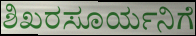
ಶಿಖರಸೂರ್ಯನಿಗೆ